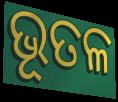
ଭୂତଳ